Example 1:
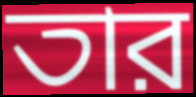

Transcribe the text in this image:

তার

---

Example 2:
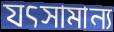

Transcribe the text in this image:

যৎসামান্য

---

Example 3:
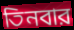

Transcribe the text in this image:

তিনবার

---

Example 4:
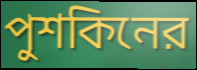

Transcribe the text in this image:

পুশকিনের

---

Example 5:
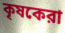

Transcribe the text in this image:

কৃষকেরা